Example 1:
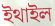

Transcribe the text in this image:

ইথাইল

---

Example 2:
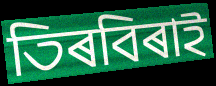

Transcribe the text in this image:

তিৰবিৰাই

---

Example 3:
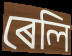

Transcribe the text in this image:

ৰেলি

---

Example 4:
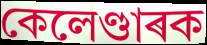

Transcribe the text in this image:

কেলেণ্ডাৰক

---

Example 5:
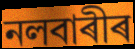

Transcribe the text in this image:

নলবাৰীৰ